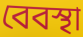
বেবস্থা